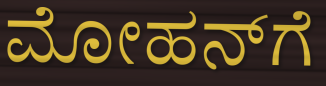
ಮೋಹನ್‌ಗೆ